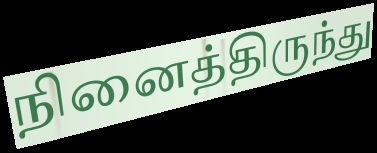
நினைத்திருந்து